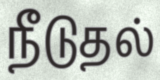
நீடுதல்